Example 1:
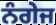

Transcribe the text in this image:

ਨੰਗੇਜ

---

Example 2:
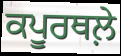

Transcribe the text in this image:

ਕਪੂਰਥਲ਼ੇ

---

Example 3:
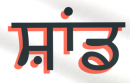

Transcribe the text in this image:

ਸ਼ਾਂਡ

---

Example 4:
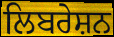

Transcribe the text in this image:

ਲਿਬਰੇਸ਼ਨ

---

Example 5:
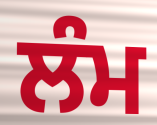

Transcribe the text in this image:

ਲੰਮ